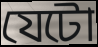
যেটো